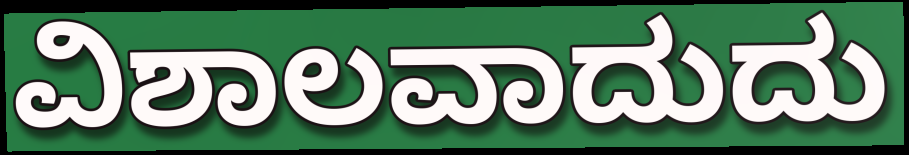
ವಿಶಾಲವಾದುದು